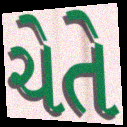
ચેતે